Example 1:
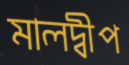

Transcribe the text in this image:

মালদ্বীপ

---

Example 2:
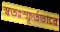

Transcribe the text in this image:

স্বতঃস্ফূৰ্তভাৱে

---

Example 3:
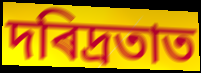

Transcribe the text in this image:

দৰিদ্ৰতাত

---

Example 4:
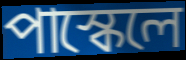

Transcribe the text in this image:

পাস্কেলে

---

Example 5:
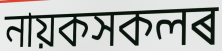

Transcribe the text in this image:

নায়কসকলৰ